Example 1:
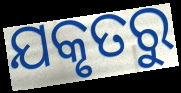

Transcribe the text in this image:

ଯକୃତରୁ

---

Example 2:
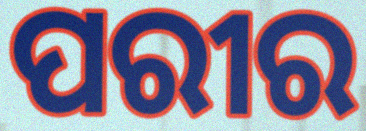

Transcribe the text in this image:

ପରୀର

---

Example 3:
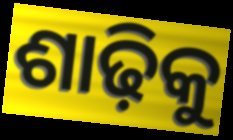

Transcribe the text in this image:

ଶାଢ଼ିକୁ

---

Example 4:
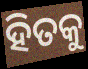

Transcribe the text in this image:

ହିତକୁ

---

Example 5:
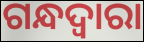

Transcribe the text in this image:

ଗନ୍ଧଦ୍ୱାରା